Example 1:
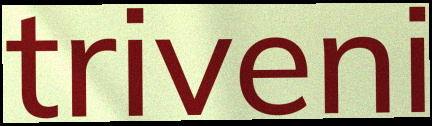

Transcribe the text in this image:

triveni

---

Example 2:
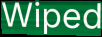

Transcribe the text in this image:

Wiped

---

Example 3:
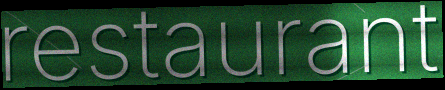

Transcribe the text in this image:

restaurant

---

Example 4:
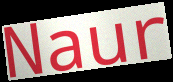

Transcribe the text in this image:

Naur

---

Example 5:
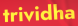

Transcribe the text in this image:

trividha